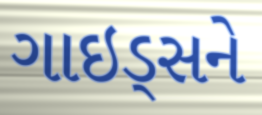
ગાઇડ્સને